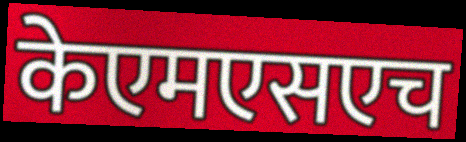
केएमएसएच